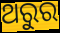
ଥରୁର